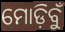
ମୋଡ଼ିବୁଁ